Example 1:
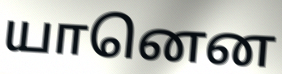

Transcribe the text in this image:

யானென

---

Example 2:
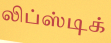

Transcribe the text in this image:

லிப்ஸ்டிக்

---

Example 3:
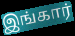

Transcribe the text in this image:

இங்கார்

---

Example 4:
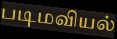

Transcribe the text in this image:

படிமவியல்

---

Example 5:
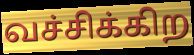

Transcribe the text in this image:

வச்சிக்கிற